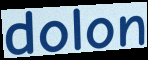
dolon